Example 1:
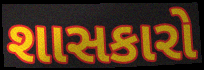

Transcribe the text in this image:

શાસકારો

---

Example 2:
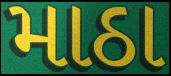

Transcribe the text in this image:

માઠા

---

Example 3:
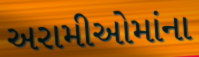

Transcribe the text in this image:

અરામીઓમાંના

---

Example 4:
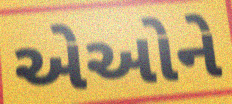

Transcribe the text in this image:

એઓને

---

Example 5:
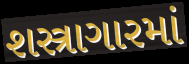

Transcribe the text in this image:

શસ્ત્રાગારમાં